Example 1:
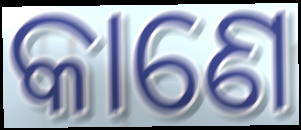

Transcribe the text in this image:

କାଣେ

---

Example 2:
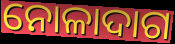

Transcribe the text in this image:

ନୋଳାଦାଗ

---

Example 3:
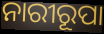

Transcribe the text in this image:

ନାରୀରୂପା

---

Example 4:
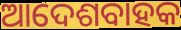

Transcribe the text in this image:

ଆଦେଶବାହକ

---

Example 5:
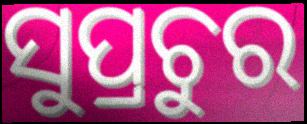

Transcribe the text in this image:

ସୁପ୍ରଚୁର